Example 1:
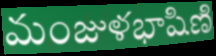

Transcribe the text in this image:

మంజుళభాషిణి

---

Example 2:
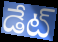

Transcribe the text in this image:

డేట్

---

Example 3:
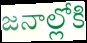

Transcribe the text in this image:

జనాల్లోకి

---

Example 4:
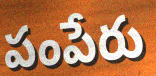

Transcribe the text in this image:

పంపేరు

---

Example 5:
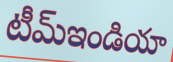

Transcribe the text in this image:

టీమ్ఇండియా